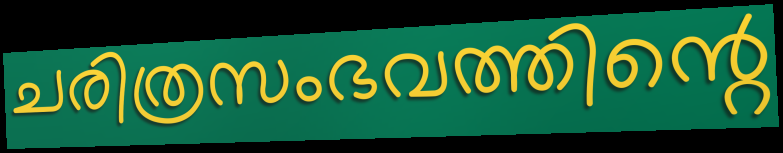
ചരിത്രസംഭവത്തിന്റെ